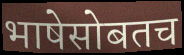
भाषेसोबतच